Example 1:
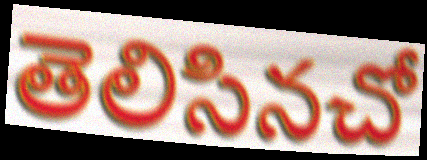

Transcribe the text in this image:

తెలిసినచో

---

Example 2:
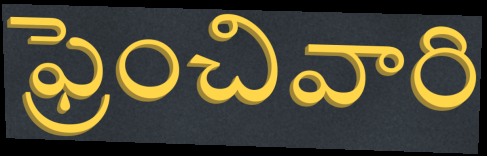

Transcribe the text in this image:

ఫ్రెంచివారి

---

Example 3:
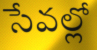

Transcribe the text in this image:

సేవల్లో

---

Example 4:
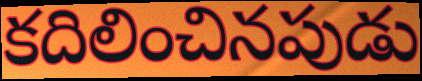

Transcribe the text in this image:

కదిలించినపుడు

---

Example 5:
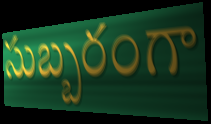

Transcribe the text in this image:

సుబ్బరంగా